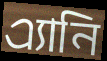
এ্যানি